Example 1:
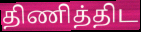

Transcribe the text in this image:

திணித்திட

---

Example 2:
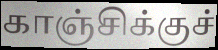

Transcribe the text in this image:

காஞ்சிக்குச்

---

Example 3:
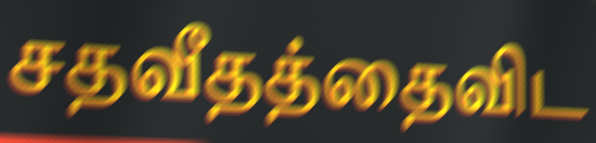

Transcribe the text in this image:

சதவீதத்தைவிட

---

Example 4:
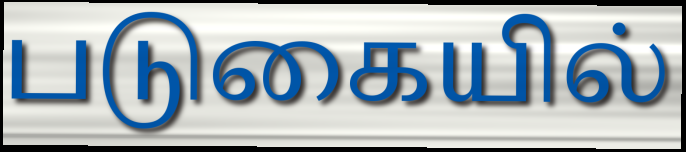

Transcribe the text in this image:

படுகையில்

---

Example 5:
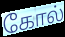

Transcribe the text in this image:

கோல்